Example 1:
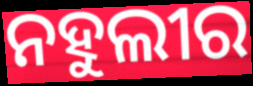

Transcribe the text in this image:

ନହୁଲୀର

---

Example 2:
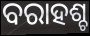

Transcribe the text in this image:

ବରାହଶ୍ଚ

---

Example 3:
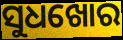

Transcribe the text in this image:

ସୁଧଖୋର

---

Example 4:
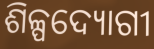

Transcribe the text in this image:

ଶିଳ୍ପଦ୍ୟୋଗୀ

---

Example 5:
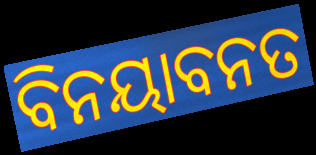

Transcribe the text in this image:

ବିନୟାବନତ